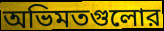
অভিমতগুলোর